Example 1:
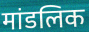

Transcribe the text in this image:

मांडलिक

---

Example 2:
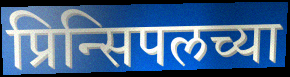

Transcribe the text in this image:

प्रिन्सिपलच्या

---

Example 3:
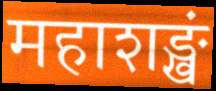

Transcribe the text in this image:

महाशङ्खं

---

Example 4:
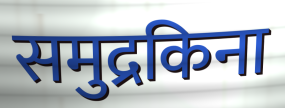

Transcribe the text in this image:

समुद्रकिना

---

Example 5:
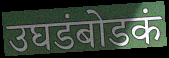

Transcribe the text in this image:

उघडंबोडकं